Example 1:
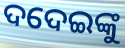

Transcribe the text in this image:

ଦଦେଇଙ୍କୁ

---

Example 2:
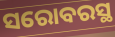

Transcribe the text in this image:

ସରୋବରସ୍ଥ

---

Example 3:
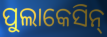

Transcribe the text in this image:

ପୁଲାକେସିନ୍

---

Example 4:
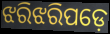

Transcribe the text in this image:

ଝରିଝରିପଡ଼େ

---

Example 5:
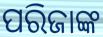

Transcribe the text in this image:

ପରିଜାଙ୍କ